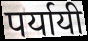
पर्यायी